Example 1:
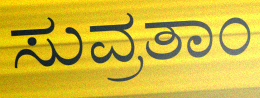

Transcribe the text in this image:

ಸುವ್ರತಾಂ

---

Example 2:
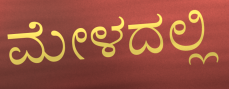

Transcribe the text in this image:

ಮೇಳದಲ್ಲಿ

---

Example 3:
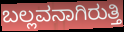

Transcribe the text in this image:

ಬಲ್ಲವನಾಗಿರುತ್ತಿ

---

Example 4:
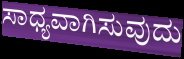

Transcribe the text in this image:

ಸಾಧ್ಯವಾಗಿಸುವುದು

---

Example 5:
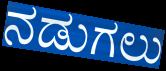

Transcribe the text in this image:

ನಡುಗಲು